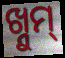
ଖ୍ନୁମ୍